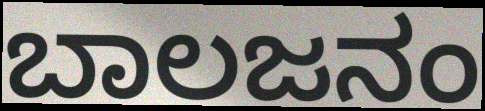
ಬಾಲಜನಂ